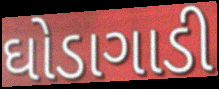
ઘોડાગાડી